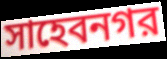
সাহেবনগর